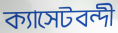
ক্যাসেটবন্দী